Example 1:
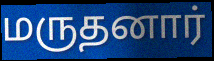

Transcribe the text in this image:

மருதனார்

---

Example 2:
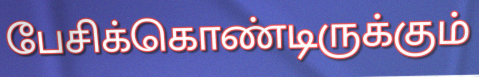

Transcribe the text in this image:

பேசிக்கொண்டிருக்கும்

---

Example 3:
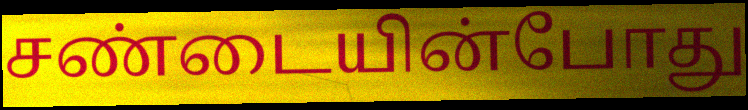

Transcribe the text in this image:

சண்டையின்போது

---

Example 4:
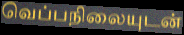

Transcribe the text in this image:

வெப்பநிலையுடன்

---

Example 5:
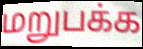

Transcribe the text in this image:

மறுபக்க